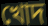
খোদ